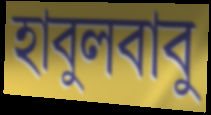
হাবুলবাবু